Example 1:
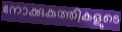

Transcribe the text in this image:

നോക്കുകുത്തികളുടെ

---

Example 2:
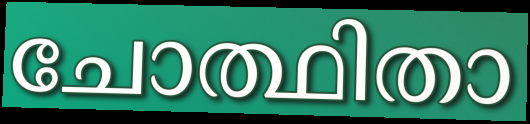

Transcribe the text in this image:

ചോത്ഥിതാ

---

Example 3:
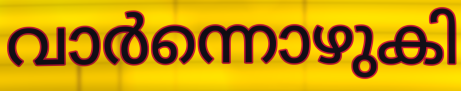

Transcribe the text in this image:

വാർന്നൊഴുകി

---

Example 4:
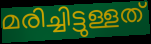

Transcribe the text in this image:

മരിച്ചിട്ടുള്ളത്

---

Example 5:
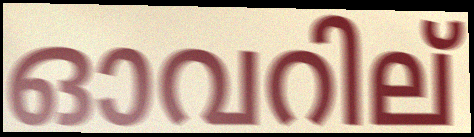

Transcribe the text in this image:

ഓവറില്